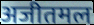
अजीतमल